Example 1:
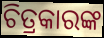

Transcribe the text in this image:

ଚିତ୍ରକାରଙ୍କ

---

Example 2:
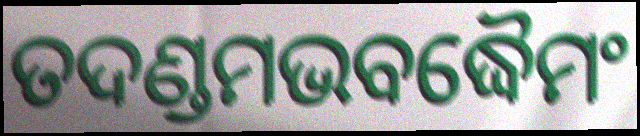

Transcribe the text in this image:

ତଦଣ୍ଡମଭବଦ୍ଧୈମଂ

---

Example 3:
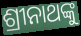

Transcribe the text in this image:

ଶ୍ରୀନାଥଙ୍କୁ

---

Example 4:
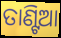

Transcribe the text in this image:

ତାଣ୍ଟିଆ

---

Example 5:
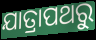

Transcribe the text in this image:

ଯାତ୍ରାପଥରୁ